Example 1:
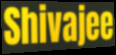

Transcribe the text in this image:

Shivajee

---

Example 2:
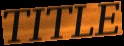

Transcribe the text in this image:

TITLE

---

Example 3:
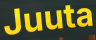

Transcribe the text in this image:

Juuta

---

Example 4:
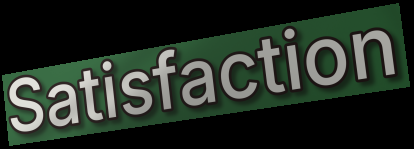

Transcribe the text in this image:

Satisfaction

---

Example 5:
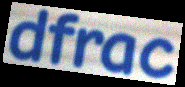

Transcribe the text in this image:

dfrac